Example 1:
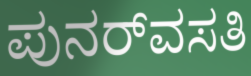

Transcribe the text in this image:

ಪುನರ್‌ವಸತಿ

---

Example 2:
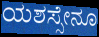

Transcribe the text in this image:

ಯಶಸ್ಸೇನೂ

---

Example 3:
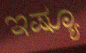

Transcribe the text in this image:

ಇಷ್ಯೂ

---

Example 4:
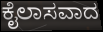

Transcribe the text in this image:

ಕೈಲಾಸವಾದ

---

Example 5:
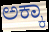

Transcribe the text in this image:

ಅಕ್ಕಾ